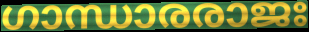
ഗാന്ധാരരാജഃ